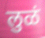
लुळं